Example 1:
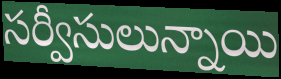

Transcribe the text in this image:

సర్వీసులున్నాయి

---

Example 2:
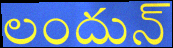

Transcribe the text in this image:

లందున్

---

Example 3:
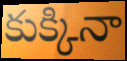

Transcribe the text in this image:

కుక్కినా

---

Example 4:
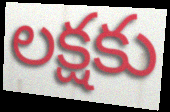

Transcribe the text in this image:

లక్షకు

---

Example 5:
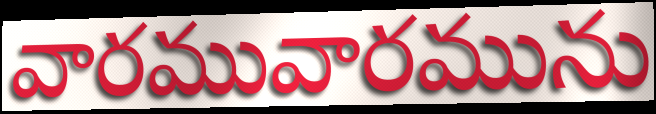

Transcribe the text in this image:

వారమువారమును